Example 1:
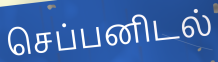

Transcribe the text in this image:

செப்பனிடல்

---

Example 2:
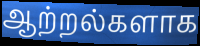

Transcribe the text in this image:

ஆற்றல்களாக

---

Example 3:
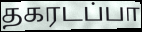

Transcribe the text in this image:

தகரடப்பா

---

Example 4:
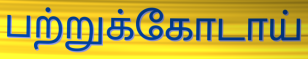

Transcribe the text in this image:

பற்றுக்கோடாய்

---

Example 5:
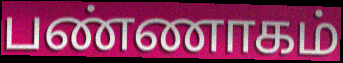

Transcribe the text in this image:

பண்ணாகம்